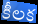
కీలక